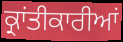
ਕ੍ਰਾਂਤੀਕਾਰੀਆਂ